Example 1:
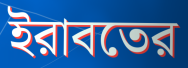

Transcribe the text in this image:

ইরাবতের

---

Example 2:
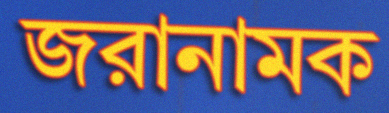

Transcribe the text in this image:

জরানামক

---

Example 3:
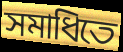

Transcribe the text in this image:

সমাধিতে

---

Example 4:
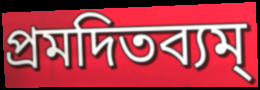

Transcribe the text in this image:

প্রমদিতব্যম্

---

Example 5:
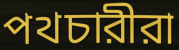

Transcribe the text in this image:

পথচারীরা